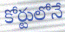
కోర్టులోనే